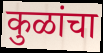
कुळांचा